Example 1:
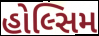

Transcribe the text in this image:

હોલ્સિમ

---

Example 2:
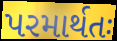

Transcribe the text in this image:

પરમાર્થતઃ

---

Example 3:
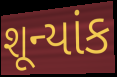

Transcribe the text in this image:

શૂન્યાંક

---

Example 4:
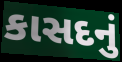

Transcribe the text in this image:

કાસદનું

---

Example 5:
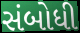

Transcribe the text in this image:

સંબોધી